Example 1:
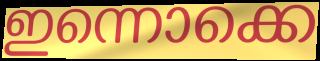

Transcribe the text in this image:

ഇന്നൊക്കെ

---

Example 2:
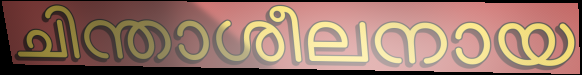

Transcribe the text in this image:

ചിന്താശീലനായ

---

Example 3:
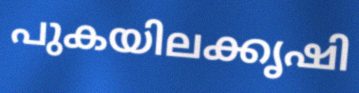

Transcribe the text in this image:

പുകയിലക്കൃഷി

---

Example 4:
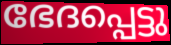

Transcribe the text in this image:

ഭേദപ്പെട്ടു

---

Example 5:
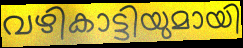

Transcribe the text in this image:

വഴികാട്ടിയുമായി